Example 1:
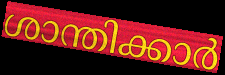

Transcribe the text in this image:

ശാന്തിക്കാർ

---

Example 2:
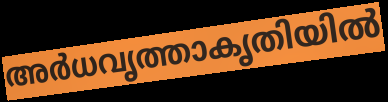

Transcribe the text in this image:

അർധവൃത്താകൃതിയിൽ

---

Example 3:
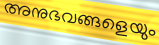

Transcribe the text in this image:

അനുഭവങ്ങളെയും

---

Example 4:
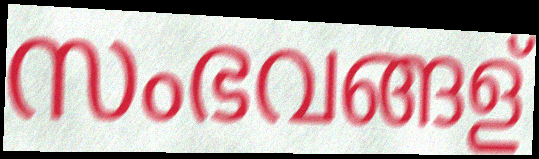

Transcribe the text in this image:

സംഭവങ്ങള്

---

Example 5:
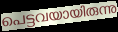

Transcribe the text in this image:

പെട്ടവയായിരുന്നു